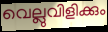
വെല്ലുവിളിക്കും